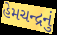
હેમચન્દ્રનું